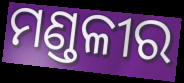
ମଣ୍ଡଳୀର